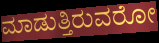
ಮಾಡುತ್ತಿರುವರೋ